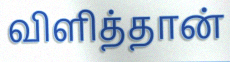
விளித்தான்